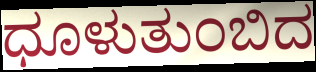
ಧೂಳುತುಂಬಿದ